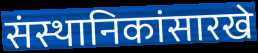
संस्थानिकांसारखे